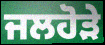
ਜਲਹੋੜੇ